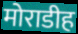
मोराडीह